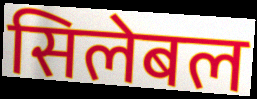
सिलेबल